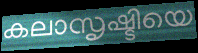
കലാസൃഷ്ടിയെ